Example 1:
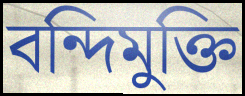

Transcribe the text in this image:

বন্দিমুক্তি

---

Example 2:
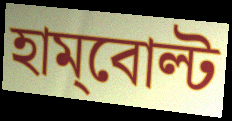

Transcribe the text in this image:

হাম্‌বোল্ট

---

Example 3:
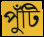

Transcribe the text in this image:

পুঁটি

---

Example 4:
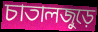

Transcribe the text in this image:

চাতালজুড়ে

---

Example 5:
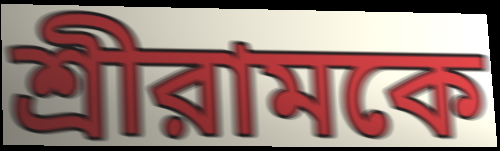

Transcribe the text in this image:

শ্রীরামকে